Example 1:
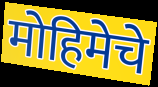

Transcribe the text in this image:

मोहिमेचे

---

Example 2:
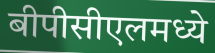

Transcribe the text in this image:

बीपीसीएलमध्ये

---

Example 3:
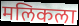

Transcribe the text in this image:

मलिकला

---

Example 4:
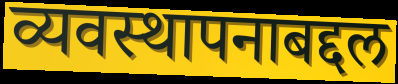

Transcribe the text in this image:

व्यवस्थापनाबद्दल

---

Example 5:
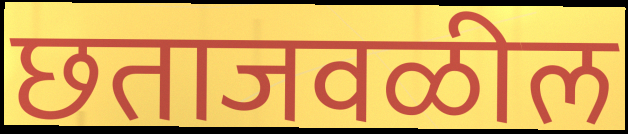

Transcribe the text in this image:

छताजवळील